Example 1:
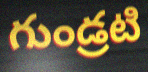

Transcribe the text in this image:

గుండ్రటి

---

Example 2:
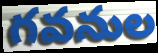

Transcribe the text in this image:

గవనుల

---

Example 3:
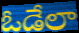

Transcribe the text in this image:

ఓడేలా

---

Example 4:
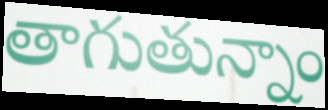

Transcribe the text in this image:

తాగుతున్నాం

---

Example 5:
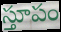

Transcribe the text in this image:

స్తూపం